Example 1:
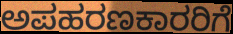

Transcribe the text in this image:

ಅಪಹರಣಕಾರರಿಗೆ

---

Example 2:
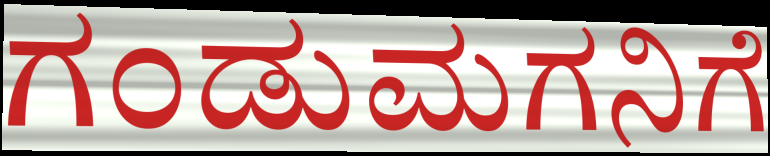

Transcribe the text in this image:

ಗಂಡುಮಗನಿಗೆ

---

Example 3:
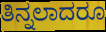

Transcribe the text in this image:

ತಿನ್ನಲಾದರೂ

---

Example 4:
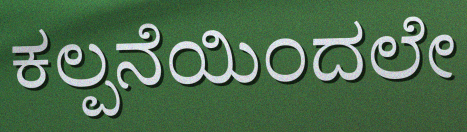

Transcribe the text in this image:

ಕಲ್ಪನೆಯಿಂದಲೇ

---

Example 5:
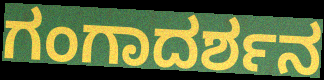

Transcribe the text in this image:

ಗಂಗಾದರ್ಶನ